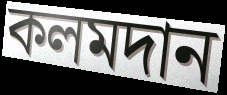
কলমদান